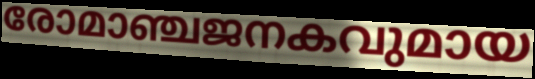
രോമാഞ്ചജനകവുമായ